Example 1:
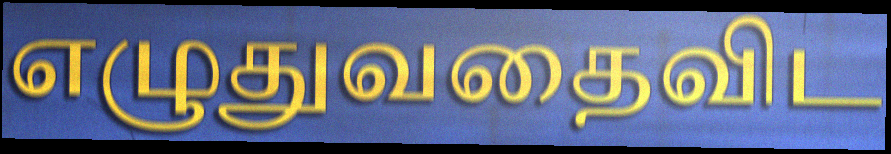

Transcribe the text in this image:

எழுதுவதைவிட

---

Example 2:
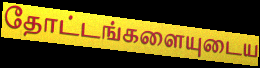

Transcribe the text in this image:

தோட்டங்களையுடைய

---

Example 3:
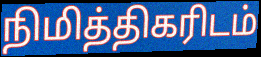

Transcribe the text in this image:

நிமித்திகரிடம்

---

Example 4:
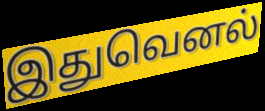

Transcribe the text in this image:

இதுவெனல்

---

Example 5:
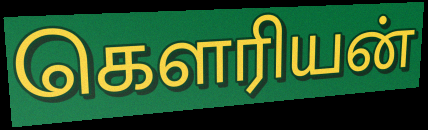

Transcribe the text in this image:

கௌரியன்